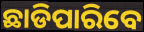
ଛାଡିପାରିବେ